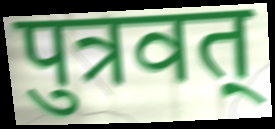
पुत्रवत्